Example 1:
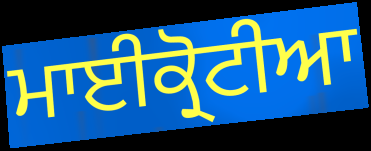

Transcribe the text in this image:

ਮਾਈਕ੍ਰੋਟੀਆ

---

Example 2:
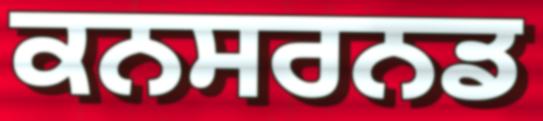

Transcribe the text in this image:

ਕਨਸਰਨਡ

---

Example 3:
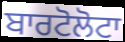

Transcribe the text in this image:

ਬਾਰਟੋਲੋਟਾ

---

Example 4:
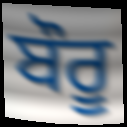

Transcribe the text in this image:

ਬੌਰੂ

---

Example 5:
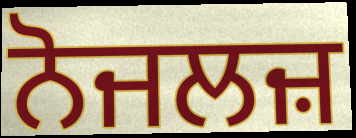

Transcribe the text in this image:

ਨੋਜਲਜ਼